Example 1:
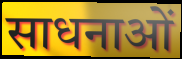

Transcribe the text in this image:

साधनाओं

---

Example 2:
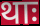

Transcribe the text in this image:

थाः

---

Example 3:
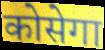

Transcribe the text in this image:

कोसेगा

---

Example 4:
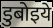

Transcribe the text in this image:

डुबोइये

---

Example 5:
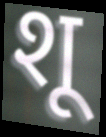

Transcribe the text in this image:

शू